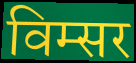
विम्सर